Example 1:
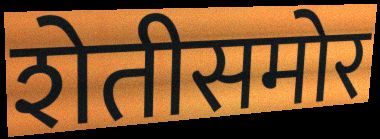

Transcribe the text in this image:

शेतीसमोर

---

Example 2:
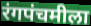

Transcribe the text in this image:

रंगपंचमीला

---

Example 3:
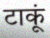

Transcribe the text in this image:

टाकूं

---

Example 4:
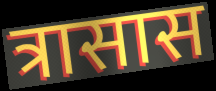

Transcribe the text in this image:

त्रासास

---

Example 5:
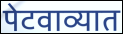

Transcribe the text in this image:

पेटवाव्यात